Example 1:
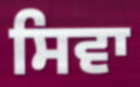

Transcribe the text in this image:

ਸਿਵਾ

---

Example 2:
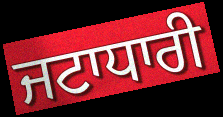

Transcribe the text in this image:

ਜਟਾਧਾਰੀ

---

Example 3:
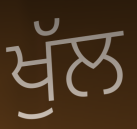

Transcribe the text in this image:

ਖੁੱਲ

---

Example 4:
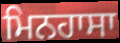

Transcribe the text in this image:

ਮਿਨਹਾਸਾ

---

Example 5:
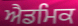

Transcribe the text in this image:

ਐਡਮਿਕ